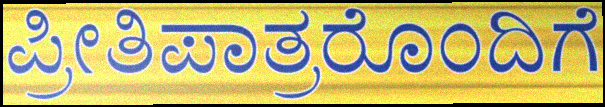
ಪ್ರೀತಿಪಾತ್ರರೊಂದಿಗೆ